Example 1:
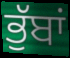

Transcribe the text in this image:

ਭੁੱਬਾਂ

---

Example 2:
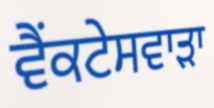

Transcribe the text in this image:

ਵੈਂਕਟੇਸਵਾੜਾ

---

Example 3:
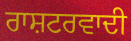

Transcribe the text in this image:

ਰਾਸ਼ਟਰਵਾਦੀ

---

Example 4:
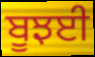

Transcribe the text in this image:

ਬੂਝਈ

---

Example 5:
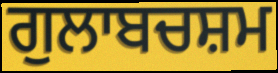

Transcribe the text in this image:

ਗੁਲਾਬਚਸ਼ਮ